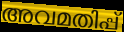
അവമതിപ്പ്